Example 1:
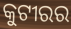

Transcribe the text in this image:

କୁଟୀରର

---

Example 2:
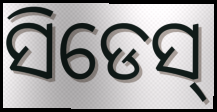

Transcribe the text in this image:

ସିଡେସ୍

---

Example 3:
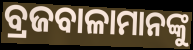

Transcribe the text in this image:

ବ୍ରଜବାଳାମାନଙ୍କୁ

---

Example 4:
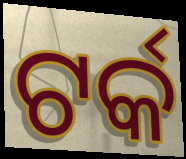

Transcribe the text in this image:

ଟର୍କ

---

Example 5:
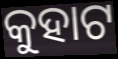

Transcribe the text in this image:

କୁହାଟ